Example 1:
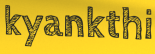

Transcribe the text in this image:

kyankthi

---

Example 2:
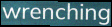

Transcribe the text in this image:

wrenching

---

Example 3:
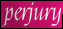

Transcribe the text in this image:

perjury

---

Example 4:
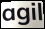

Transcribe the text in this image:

agil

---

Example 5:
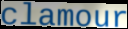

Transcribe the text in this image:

clamour